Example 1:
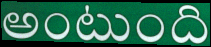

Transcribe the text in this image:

అంటుంది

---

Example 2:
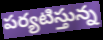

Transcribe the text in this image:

పర్యటిస్తున్న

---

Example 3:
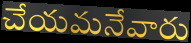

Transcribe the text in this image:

చేయమనేవారు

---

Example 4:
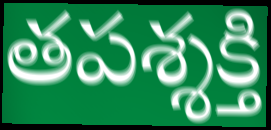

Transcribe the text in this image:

తపశ్శక్తి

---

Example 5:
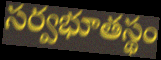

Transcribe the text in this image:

సర్వభూతస్థం